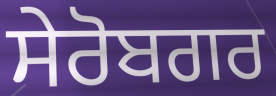
ਸੇਰੋਬਗਰ